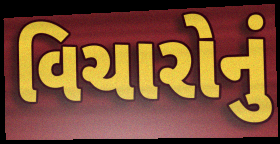
વિચારોનું